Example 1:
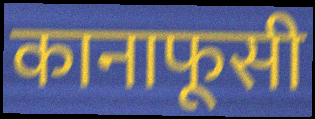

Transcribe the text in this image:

कानाफूसी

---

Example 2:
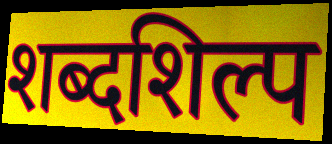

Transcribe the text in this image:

शब्दशिल्प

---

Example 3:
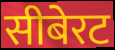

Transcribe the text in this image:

सीबेरट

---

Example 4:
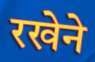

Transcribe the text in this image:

रखेने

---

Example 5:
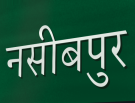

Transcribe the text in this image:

नसीबपुर